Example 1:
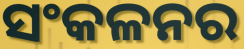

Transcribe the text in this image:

ସଂକଳନର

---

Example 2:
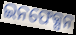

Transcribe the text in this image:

ଇନଫେକ୍ସନ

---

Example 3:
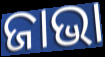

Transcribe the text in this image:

ଜାଭା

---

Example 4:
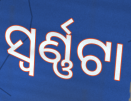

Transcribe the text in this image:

ସ୍ୱର୍ଣ୍ଣଟା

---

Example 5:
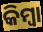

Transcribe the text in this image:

କିମ୍ବା